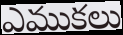
ఎముకలు